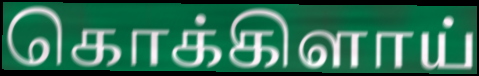
கொக்கிளாய்